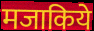
मजाकिये